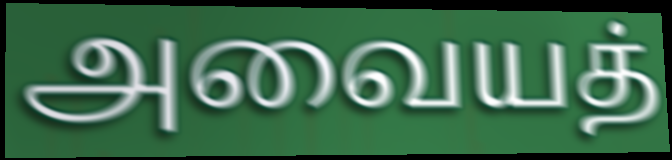
அவையத்